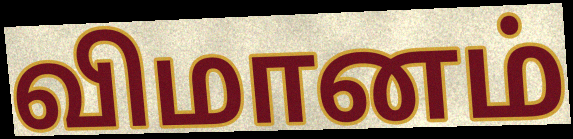
விமானம்